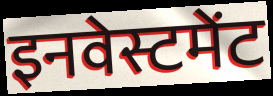
इनवेस्‍टमेंट